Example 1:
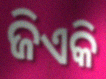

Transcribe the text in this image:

ଜିଏକି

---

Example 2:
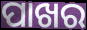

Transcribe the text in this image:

ପାଖର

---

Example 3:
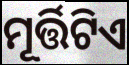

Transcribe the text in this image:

ମୂର୍ତ୍ତିଟିଏ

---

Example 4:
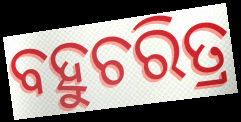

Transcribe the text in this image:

ବହୁଚରିତ୍ର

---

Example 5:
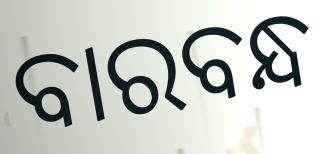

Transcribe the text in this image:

ବାରବନ୍ଧ